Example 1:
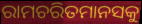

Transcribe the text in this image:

ରାମଚରିତମାନସକୁ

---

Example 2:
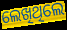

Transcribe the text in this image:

ଲେଖିଥିଲେ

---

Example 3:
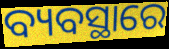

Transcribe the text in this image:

ବ୍ୟବସ୍ଥାରେ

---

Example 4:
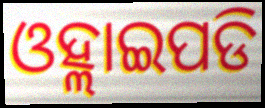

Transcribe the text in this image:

ଓହ୍ଲାଇପଡି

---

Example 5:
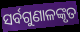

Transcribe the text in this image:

ସର୍ବଗୁଣାଳଙ୍କୃତ